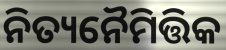
ନିତ୍ୟନୈମିତ୍ତିକ